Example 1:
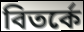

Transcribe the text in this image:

বিতর্কে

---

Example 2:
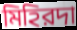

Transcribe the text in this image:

মিহিরদা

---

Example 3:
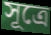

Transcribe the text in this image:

সূত্রে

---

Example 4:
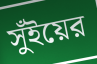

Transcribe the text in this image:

সুঁইয়ের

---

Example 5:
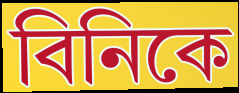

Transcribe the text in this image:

বিনিকে